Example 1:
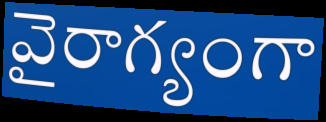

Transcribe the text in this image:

వైరాగ్యంగా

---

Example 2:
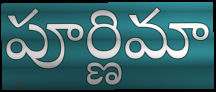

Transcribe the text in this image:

పూర్ణిమా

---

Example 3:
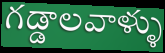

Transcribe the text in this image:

గడ్డాలవాళ్ళు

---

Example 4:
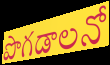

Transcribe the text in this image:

పొగడాలనో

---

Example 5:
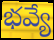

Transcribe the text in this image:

భవ్యే